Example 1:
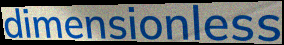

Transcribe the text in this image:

dimensionless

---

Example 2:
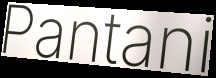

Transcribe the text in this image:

Pantani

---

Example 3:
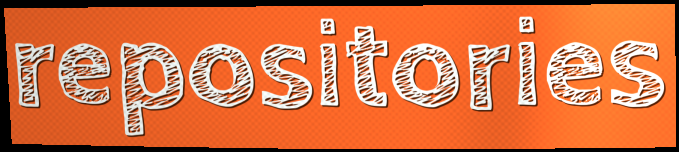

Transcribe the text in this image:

repositories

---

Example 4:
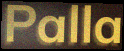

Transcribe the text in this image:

Palla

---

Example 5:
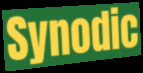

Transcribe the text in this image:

Synodic